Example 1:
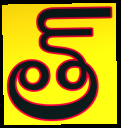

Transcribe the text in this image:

త్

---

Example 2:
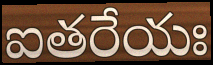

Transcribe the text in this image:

ఐతరేయః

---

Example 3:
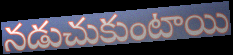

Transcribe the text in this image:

నడుచుకుంటాయి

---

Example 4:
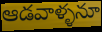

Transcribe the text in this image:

ఆడవాళ్ళనూ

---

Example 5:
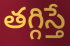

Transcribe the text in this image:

తగ్గిస్తే